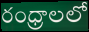
రంధ్రాలలో